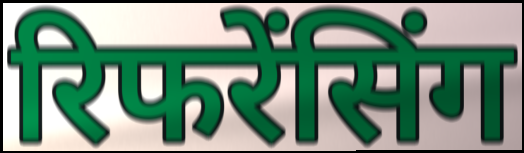
रिफरेंसिंग